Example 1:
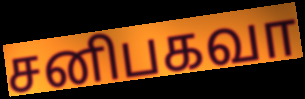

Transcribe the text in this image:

சனிபகவா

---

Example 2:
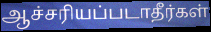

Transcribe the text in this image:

ஆச்சரியப்படாதீர்கள்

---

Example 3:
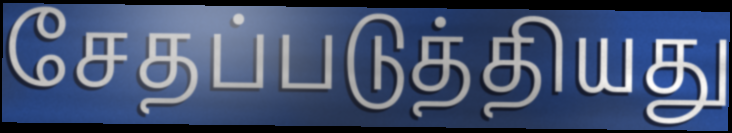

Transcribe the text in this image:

சேதப்படுத்தியது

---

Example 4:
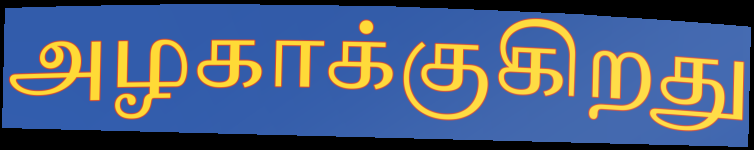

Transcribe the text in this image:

அழகாக்குகிறது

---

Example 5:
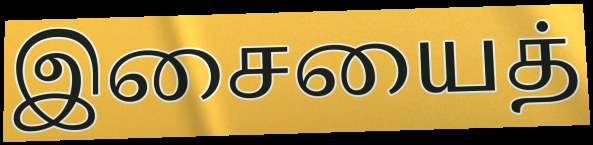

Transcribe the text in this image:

இசையைத்